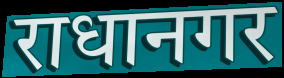
राधानगर